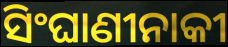
ସିଂଘାଣୀନାକୀ